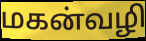
மகன்வழி